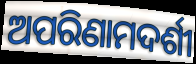
ଅପରିଣାମଦର୍ଶୀ